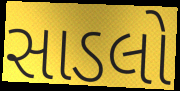
સાડલો